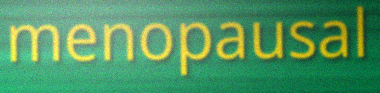
menopausal